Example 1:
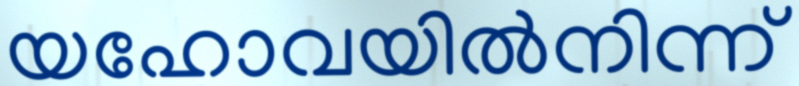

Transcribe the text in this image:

യഹോവയിൽനിന്ന്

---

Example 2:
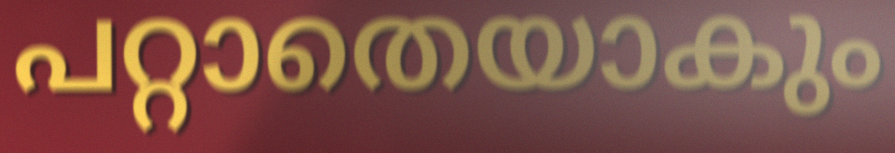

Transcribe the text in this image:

പറ്റാതെയാകും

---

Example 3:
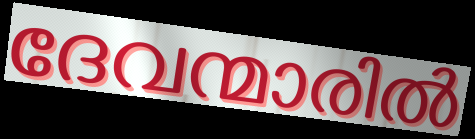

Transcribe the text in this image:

ദേവന്മാരിൽ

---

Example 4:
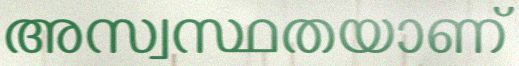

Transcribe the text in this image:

അസ്വസ്ഥതയാണ്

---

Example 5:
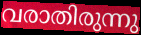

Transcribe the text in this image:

വരാതിരുന്നു